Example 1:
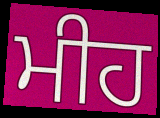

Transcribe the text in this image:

ਮੀਹ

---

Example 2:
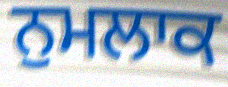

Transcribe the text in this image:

ਨੁਮਲਾਕ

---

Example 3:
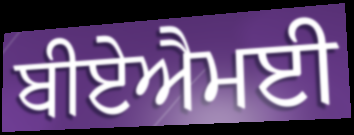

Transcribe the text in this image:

ਬੀਏਐਮਈ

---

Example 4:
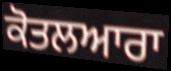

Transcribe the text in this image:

ਕੋਤਲਆਰਾ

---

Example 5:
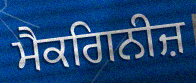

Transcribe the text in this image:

ਮੈਕਗਿਨੀਜ਼